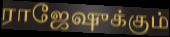
ராஜேஷுக்கும்